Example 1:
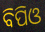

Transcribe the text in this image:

ବିପିଓ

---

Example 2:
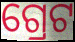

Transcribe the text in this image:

ଗ୍ରେଟ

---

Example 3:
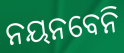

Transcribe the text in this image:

ନୟନବେନି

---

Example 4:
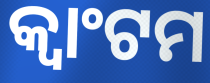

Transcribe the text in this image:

କ୍ୱାଂଟମ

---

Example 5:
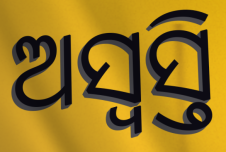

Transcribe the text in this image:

ଅସ୍ୱସ୍ତି